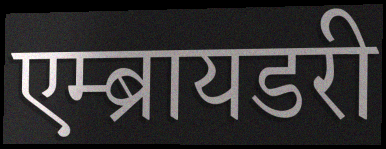
एम्ब्रायडरी